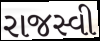
રાજસ્વી